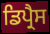
ਡਿਪ੍ਰੈਸ